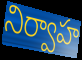
నిర్వాహ